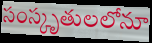
సంస్కృతులలోనూ